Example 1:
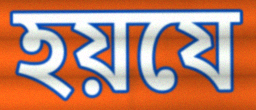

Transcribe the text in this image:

হয়যে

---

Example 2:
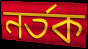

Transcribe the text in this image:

নৰ্তক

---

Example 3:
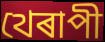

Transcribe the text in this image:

থেৰাপী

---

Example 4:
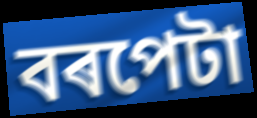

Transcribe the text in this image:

বৰপেটা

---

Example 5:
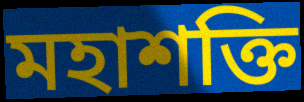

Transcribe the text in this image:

মহাশক্তি